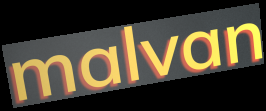
malvan